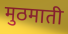
मुठमाती